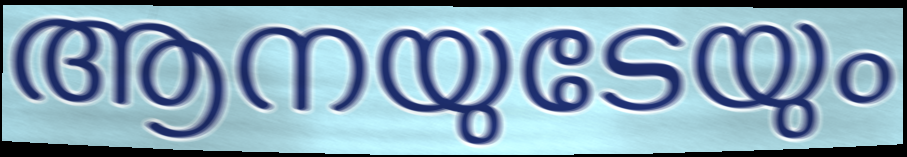
ആനയുടേയും